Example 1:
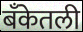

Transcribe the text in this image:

बँकेतली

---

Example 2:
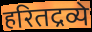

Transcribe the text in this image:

हरितद्रव्ये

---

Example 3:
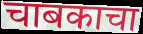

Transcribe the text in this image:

चाबकाचा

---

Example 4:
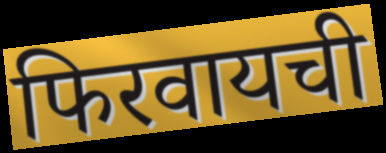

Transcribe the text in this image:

फिरवायची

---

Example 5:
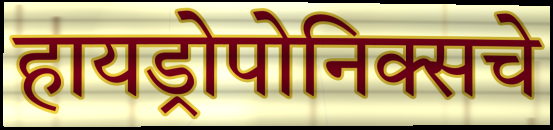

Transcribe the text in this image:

हायड्रोपोनिक्सचे